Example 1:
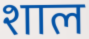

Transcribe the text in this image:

शाल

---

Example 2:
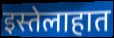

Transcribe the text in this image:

इस्तेलाहात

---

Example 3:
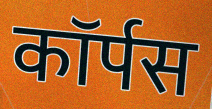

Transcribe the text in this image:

कॉर्पस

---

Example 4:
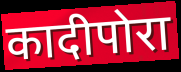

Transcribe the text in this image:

कादीपोरा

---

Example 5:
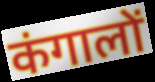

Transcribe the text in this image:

कंगालों